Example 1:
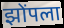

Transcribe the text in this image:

झोंपला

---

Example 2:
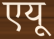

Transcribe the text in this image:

एयू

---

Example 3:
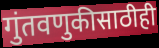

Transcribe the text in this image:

गुंतवणुकीसाठीही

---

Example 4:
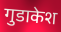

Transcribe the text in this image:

गुडाकेश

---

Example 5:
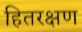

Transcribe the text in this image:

हितरक्षण